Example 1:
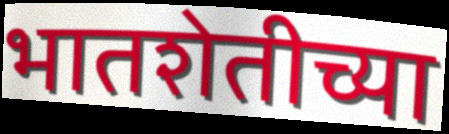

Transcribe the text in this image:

भातशेतीच्या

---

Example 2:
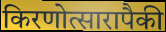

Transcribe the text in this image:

किरणोत्सारापैकी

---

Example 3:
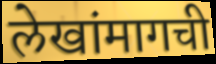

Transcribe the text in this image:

लेखांमागची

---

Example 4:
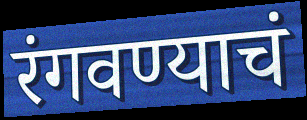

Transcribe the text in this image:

रंगवण्याचं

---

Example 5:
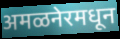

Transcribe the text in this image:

अमळनेरमधून